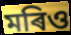
মৰিও